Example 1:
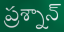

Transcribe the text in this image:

ప్రశ్నాన్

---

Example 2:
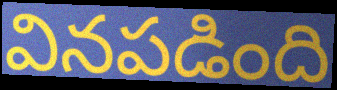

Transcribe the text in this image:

వినపడింది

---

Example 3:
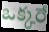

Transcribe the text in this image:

ఒక్కరే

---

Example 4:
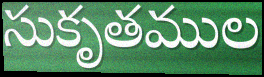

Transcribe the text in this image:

సుకృతముల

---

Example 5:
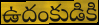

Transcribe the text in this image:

ఉదంకుడికి